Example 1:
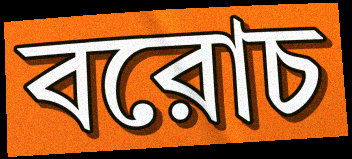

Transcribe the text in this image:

বরোচ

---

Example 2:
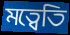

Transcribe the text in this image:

মত্বেতি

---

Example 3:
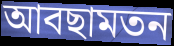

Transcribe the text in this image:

আবছামতন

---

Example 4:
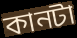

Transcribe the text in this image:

কানটা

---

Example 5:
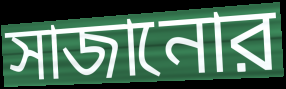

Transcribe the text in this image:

সাজানোর